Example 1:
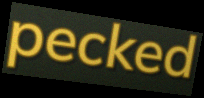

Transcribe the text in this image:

pecked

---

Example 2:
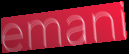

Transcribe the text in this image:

emani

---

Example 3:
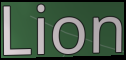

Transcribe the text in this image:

Lion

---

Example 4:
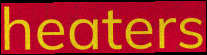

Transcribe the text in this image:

heaters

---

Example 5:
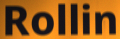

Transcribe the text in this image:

Rollin